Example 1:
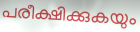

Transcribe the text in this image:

പരീക്ഷിക്കുകയും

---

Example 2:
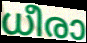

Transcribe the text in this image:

ധീരാ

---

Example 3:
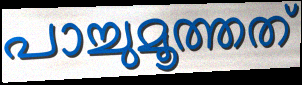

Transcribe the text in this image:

പാച്ചുമൂത്തത്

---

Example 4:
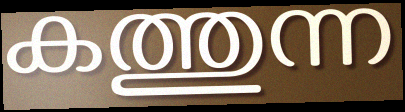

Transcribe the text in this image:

കത്തുന്ന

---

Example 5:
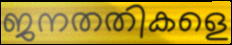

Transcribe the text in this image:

ജനതതികളെ